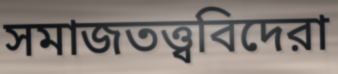
সমাজতত্ত্ববিদেরা